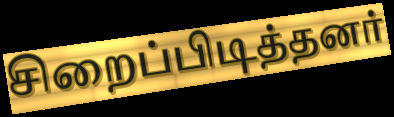
சிறைப்பிடித்தனர்